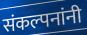
संकल्पनांनी